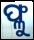
ଫ୍ଳୁ